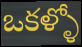
ఒకళ్ళో